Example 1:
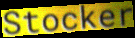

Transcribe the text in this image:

Stocker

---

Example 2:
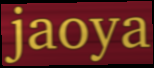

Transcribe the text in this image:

jaoya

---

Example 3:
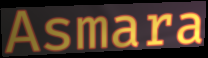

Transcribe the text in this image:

Asmara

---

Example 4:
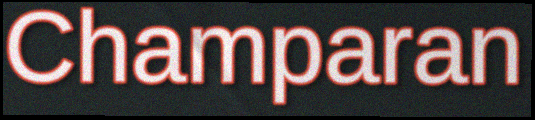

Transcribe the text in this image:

Champaran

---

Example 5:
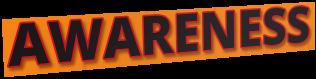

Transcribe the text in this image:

AWARENESS